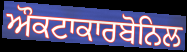
ਔਕਟਾਕਾਰਬੋਨਿਲ